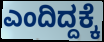
ಎಂದಿದ್ದಕ್ಕೆ